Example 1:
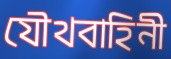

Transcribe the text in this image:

যৌথবাহিনী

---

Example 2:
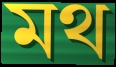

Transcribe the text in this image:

মথ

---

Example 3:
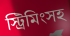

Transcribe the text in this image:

স্ট্রিমিংসহ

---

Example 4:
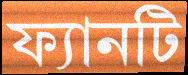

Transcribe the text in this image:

ফ্যানটি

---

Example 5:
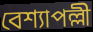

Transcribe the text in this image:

বেশ্যাপল্লী